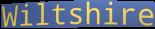
Wiltshire